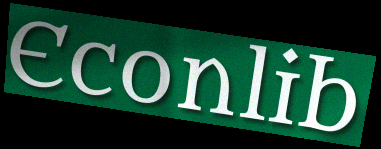
Econlib